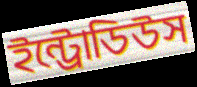
ইন্ট্রোডিউস